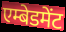
एम्बेडमेंट